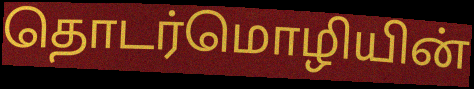
தொடர்மொழியின்